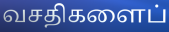
வசதிகளைப்